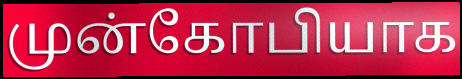
முன்கோபியாக